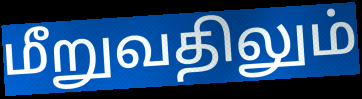
மீறுவதிலும்